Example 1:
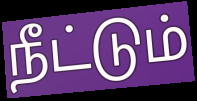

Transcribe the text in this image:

நீட்டும்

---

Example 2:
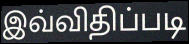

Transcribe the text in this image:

இவ்விதிப்படி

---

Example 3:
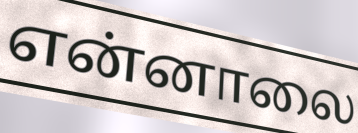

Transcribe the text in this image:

என்னாலை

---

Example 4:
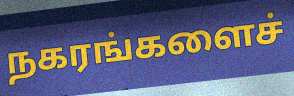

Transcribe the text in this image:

நகரங்களைச்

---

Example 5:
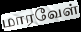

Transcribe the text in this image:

மாரவேள்